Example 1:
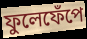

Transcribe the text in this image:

ফুলেফেঁপে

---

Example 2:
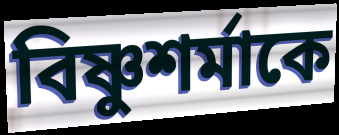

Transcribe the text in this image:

বিষ্ণুশর্মাকে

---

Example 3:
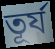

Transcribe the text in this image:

তূর্য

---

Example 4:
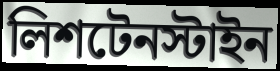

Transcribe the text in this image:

লিশটেনস্টাইন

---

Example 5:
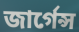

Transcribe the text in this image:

জার্গেন্স